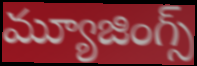
మ్యూజింగ్స్